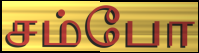
சம்போ